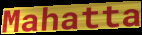
Mahatta